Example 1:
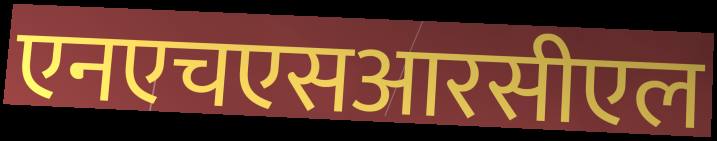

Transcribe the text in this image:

एनएचएसआरसीएल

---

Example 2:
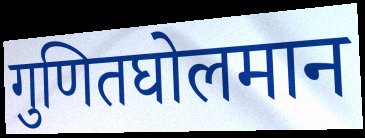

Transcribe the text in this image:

गुणितघोलमान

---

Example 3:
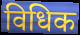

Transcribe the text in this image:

विधिक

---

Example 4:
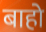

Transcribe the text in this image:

बाहो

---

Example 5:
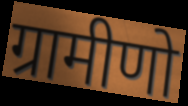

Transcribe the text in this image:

ग्रामीणो